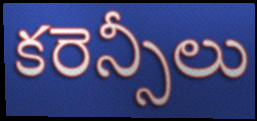
కరెన్సీలు